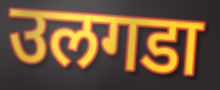
उलगडा